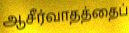
ஆசீர்வாதத்தைப்